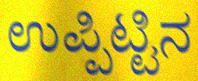
ಉಪ್ಪಿಟ್ಟಿನ